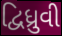
દ્વિધ્રુવી